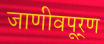
जाणीवपूर्ण